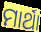
ମାର୍ଥା